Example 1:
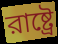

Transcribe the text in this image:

রাষ্ট্রে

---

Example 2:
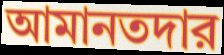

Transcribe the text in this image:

আমানতদার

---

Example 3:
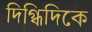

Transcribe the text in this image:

দিগ্ধিদিকে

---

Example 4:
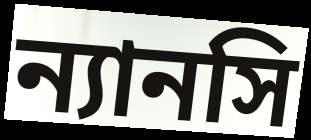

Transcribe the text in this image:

ন্যানসি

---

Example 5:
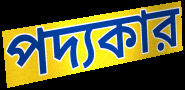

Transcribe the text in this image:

পদ্যকার